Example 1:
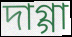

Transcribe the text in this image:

দাগ্গা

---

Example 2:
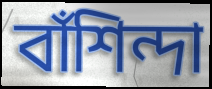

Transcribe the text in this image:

বাঁশিন্দা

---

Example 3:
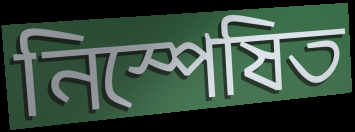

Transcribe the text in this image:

নিস্পেষিত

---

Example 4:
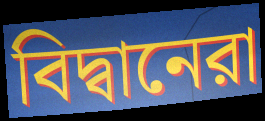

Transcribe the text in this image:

বিদ্বানেরা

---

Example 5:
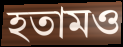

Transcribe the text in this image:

হতামও